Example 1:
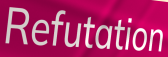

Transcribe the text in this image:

Refutation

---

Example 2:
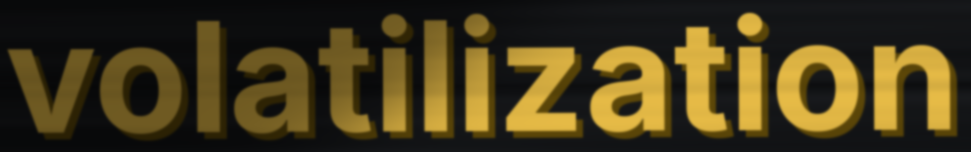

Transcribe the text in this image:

volatilization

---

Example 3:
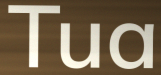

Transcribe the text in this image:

Tua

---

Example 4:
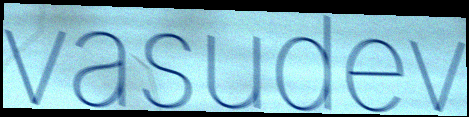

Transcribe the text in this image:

vasudev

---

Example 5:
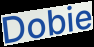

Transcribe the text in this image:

Dobie